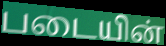
படையின்